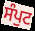
ਸੰਪੁਟ